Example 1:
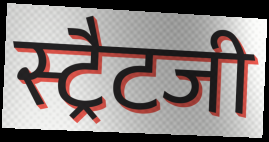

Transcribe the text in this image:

स्ट्रैटजी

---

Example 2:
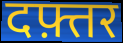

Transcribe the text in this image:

दफ़्तर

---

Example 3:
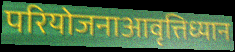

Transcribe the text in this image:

परियोजनाआवृत्तिध्यान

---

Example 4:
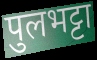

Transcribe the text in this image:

पुलभट्टा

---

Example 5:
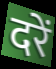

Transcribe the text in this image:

दरें